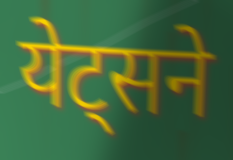
येट्सने